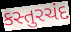
કસ્તુરચંદ